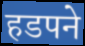
हडपने